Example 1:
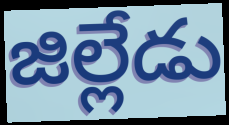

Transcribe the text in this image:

జిల్లేడు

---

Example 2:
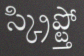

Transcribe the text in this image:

స్క్రిప్ట్తో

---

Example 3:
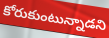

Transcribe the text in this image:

కోరుకుంటున్నాడని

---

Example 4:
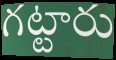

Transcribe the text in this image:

గట్టారు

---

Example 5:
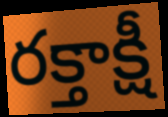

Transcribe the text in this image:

రక్తాక్షీ